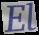
El